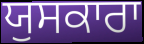
ਯੁਸਕਾਰਾ